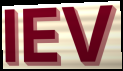
IEV